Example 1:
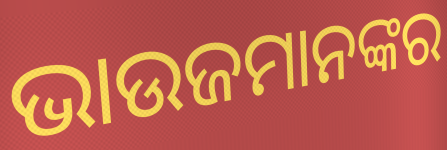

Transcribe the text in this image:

ଭାଉଜମାନଙ୍କର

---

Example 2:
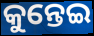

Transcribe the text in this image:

କୁନ୍ତେଇ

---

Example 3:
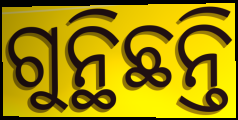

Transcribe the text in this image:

ଗୁନ୍ଥିଛନ୍ତି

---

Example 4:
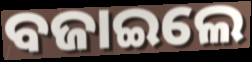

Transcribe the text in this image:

ବଜାଇଲେ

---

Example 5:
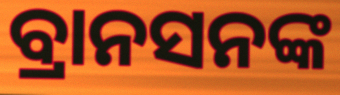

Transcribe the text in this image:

ବ୍ରାନସନଙ୍କ